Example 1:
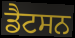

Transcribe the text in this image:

ਡੈਟਸਨ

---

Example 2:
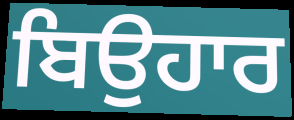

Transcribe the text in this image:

ਬਿਉਹਾਰ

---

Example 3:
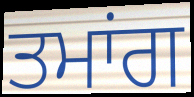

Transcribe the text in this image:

ਤਮਾਂਗ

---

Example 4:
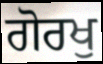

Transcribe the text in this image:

ਗੋਰਖੁ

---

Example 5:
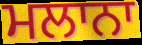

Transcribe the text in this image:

ਮਲਾਨਾ